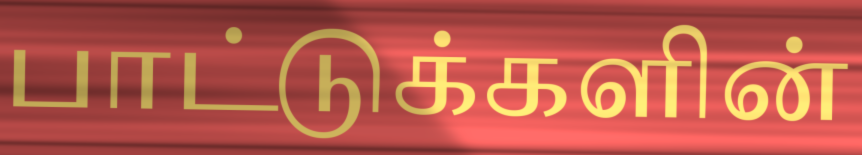
பாட்டுக்களின்